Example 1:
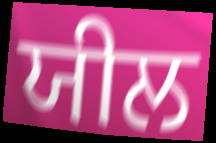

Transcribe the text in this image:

ਯੀਲ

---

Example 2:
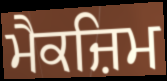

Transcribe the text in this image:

ਮੈਕਜ਼ਿਮ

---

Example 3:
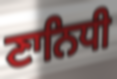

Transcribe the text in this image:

ਣਾਨਿਧੀ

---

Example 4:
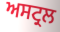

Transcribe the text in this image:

ਅਸਟ੍ਰਲ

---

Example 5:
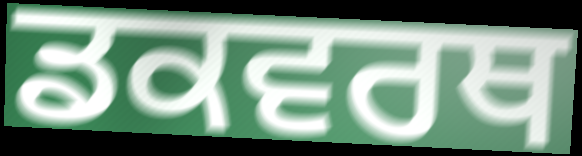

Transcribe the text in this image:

ਡਕਵਰਥ